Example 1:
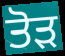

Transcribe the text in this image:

ਤੋੜ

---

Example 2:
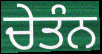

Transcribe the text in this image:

ਚੇਤੰਨ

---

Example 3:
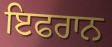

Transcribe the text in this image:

ਇਫਰਾਨ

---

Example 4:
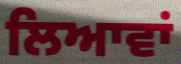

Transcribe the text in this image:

ਲਿਆਵਾਂ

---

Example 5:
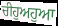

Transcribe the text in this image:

ਚੀਹੁਅਹੁਆ